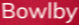
Bowlby